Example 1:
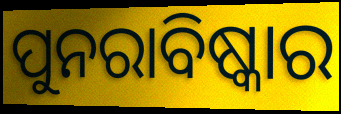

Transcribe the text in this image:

ପୁନରାବିଷ୍କାର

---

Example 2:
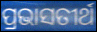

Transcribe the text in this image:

ପ୍ରଭାସତୀର୍ଥ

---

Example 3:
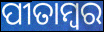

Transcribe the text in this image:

ପୀତାମ୍ବର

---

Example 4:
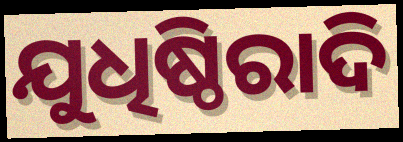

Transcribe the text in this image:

ଯୁଧିଷ୍ଠିରାଦି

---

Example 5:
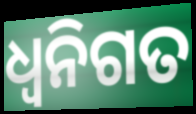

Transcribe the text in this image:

ଧ୍ଵନିଗତ